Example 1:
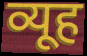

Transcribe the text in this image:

व्यूह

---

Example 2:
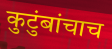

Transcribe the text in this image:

कुटुंबांचाच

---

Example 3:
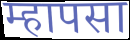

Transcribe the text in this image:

म्हापसा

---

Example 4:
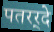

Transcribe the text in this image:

पतरर्दे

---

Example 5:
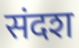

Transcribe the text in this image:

संदश